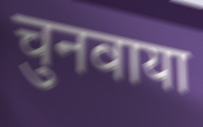
चुनवाया